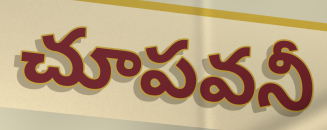
చూపవనీ